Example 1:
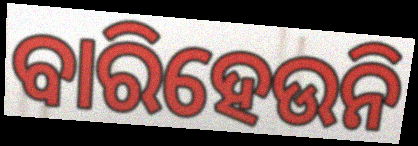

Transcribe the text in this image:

ବାରିହେଉନି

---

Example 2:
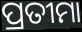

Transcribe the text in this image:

ପ୍ରତୀମା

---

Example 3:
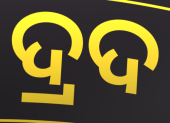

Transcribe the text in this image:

ଦ୍ରଦ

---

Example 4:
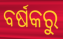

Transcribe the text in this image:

ବର୍ଷକରୁ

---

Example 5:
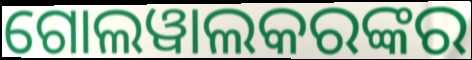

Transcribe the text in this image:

ଗୋଲୱାଲକରଙ୍କର